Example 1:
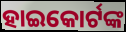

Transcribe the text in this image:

ହାଇକୋର୍ଟଙ୍କ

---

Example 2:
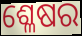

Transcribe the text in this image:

ଶ୍ଳେଷର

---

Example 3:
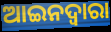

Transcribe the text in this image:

ଆଇନଦ୍ଵାରା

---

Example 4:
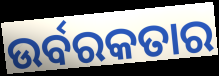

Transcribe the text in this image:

ଉର୍ବରକତାର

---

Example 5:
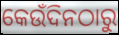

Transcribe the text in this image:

କେଉଁଦିନଠାରୁ